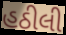
હઠીલી